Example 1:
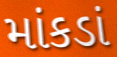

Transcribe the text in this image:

માંકડાં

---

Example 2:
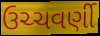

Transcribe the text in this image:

ઉચ્ચવર્ણી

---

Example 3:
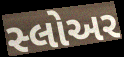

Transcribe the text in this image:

સ્લોઅર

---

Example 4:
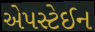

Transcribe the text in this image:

એપસ્ટેઈન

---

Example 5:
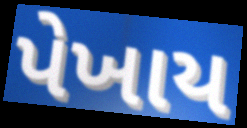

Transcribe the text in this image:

પેખાય